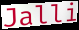
Jalli